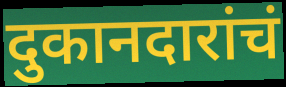
दुकानदारांचं